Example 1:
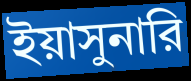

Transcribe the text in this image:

ইয়াসুনারি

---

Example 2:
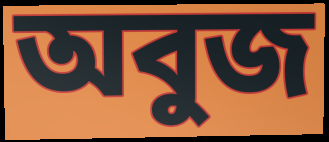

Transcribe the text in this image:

অবুজ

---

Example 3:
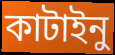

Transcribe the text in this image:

কাটাইনু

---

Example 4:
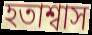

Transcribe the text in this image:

হতাশ্বাস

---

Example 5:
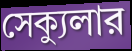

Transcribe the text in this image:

সেক্যুলার